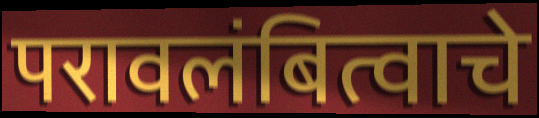
परावलंबित्वाचे